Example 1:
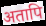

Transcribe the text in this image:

अतापि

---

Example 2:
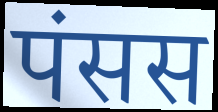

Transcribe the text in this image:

पंसस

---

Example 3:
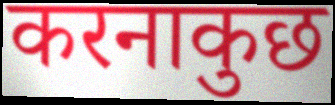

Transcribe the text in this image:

करनाकुछ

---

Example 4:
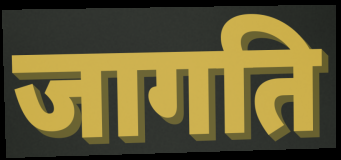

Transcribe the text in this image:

जागति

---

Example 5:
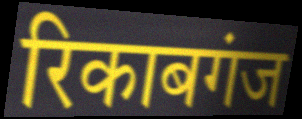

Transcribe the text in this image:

रिकाबगंज